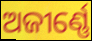
ଅଜୀର୍ଣ୍ଣେ